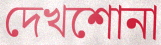
দেখশোনা